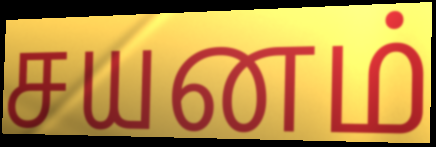
சயனம்